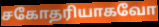
சகோதரியாகவோ